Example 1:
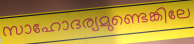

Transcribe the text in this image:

സാഹോദര്യമുണ്ടെങ്കിലേ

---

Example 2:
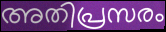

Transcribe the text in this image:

അതിപ്രസരം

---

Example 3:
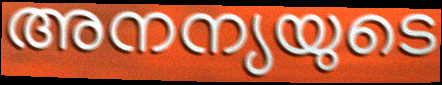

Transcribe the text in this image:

അനന്യയുടെ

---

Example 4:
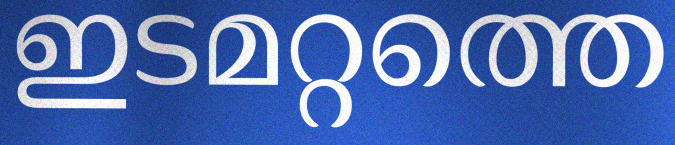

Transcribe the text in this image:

ഇടമറ്റത്തെ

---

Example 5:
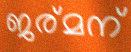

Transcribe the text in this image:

ജര്മന്